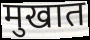
मुखात